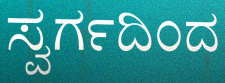
ಸ್ವರ್ಗದಿಂದ